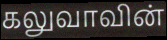
கலுவாவின்